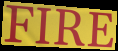
FIRE